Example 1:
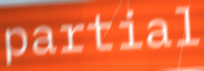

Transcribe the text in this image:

partial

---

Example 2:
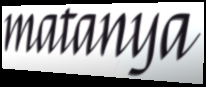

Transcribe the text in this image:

matanya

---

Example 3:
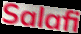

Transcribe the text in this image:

Salafi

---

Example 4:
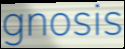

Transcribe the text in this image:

gnosis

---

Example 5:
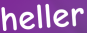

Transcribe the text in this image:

heller